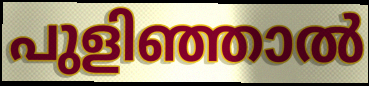
പുളിഞ്ഞാൽ